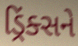
ડ્રિંક્સને